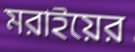
মরাইয়ের